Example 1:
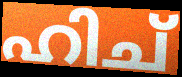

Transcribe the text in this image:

ഹിച്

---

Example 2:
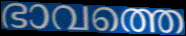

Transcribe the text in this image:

ഭാവത്തെ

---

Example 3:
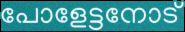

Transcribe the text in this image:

പോളേട്ടനോട്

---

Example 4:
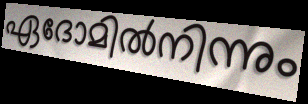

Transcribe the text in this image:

ഏദോമിൽനിന്നും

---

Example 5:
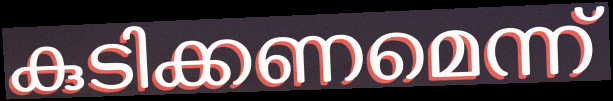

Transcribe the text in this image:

കുടിക്കണമെന്ന്